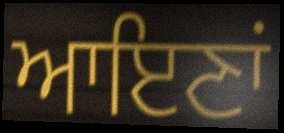
ਆਇਣਾਂ